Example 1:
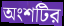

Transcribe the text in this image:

অংশটির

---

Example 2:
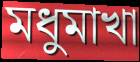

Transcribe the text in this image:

মধুমাখা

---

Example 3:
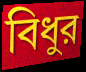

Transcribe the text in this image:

বিধুর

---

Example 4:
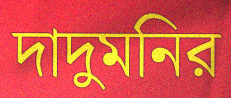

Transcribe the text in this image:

দাদুমনির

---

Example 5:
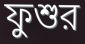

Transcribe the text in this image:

ফুশুর